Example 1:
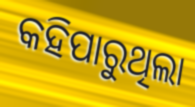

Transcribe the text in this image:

କହିପାରୁଥିଲା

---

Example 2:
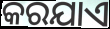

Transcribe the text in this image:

କରଯାଏ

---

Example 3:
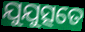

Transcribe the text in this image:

ଯୁଯୁତ୍ସତେ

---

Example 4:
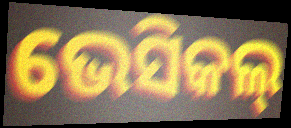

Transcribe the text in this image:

ଭେସିକଲ୍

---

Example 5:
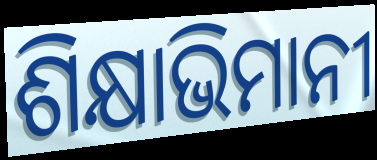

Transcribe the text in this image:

ଶିକ୍ଷାଭିମାନୀ